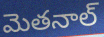
మెతనాల్